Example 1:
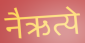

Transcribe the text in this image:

नैऋत्ये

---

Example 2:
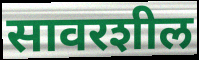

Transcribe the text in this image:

सावरशील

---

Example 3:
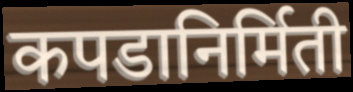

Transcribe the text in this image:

कपडानिर्मिती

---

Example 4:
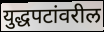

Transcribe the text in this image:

युद्धपटांवरील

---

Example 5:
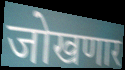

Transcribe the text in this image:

जोखणार